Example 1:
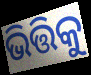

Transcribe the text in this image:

ଭିତ୍ତିକୁ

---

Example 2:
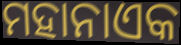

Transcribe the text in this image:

ମହାନାଏକ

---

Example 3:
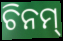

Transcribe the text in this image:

ଚିନମ୍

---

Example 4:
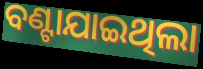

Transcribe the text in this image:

ବଣ୍ଟାଯାଇଥିଲା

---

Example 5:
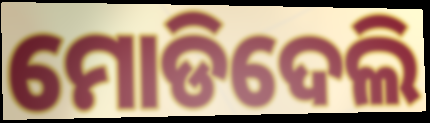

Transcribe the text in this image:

ମୋଡିଦେଲି